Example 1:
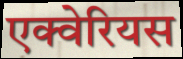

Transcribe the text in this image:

एक्वेरियस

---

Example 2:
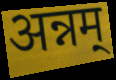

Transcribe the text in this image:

अन्नम्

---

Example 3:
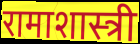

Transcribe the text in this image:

रामाशास्त्री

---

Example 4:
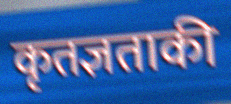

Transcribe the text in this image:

कृतज्ञताकी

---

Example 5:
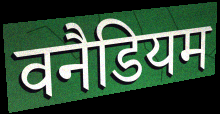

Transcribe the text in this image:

वनैडियम